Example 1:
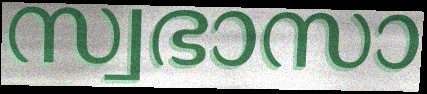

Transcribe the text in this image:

സ്വഭാസാ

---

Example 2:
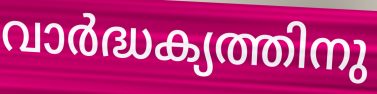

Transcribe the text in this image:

വാർദ്ധക്യത്തിനു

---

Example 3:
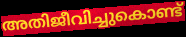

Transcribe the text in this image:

അതിജീവിച്ചുകൊണ്ട്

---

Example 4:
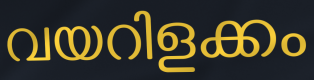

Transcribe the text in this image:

വയറിളക്കം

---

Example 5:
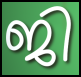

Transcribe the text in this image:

ജി